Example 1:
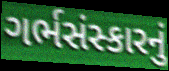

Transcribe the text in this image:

ગર્ભસંસ્કારનું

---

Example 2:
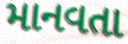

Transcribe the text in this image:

માનવતા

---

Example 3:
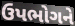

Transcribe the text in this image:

ઉપભોગને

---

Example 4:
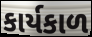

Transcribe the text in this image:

કાર્યકાળ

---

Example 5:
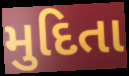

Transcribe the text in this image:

મુદિતા